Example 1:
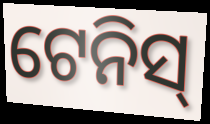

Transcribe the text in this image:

ଟେନିସ୍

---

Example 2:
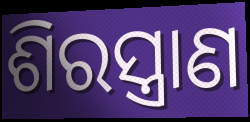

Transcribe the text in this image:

ଶିରସ୍ତ୍ରାଣ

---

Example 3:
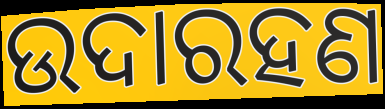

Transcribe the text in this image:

ଉଦାରହଣ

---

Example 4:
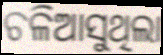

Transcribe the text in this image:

ଚଳିଆସୁଥିଲା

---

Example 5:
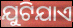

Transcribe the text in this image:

ଯୁଟିଯାଏ